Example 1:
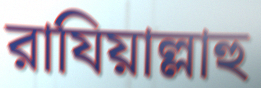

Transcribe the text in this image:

রাযিয়াল্লাহু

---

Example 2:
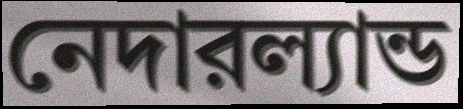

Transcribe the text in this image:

নেদারল্যান্ড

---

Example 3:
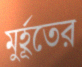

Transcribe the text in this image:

মুর্হূতের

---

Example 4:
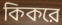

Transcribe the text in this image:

কিকরে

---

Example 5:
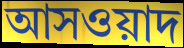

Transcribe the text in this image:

আসওয়াদ